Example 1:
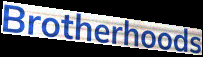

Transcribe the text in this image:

Brotherhoods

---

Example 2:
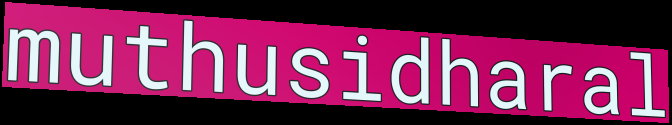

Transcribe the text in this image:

muthusidharal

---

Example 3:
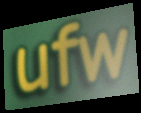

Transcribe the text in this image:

ufw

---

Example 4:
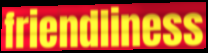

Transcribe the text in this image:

friendliness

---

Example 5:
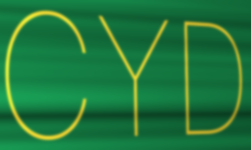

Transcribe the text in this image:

CYD